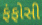
ફંફોસી